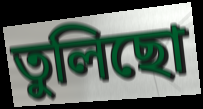
তুলিছো